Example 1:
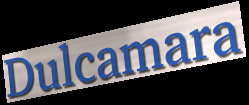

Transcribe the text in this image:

Dulcamara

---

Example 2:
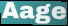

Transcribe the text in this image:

Aage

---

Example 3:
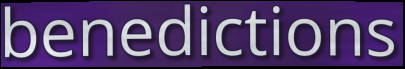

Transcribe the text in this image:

benedictions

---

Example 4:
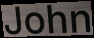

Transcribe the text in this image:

John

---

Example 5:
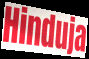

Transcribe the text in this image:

Hinduja